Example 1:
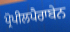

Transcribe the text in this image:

ਪ੍ਰੋਪੀਲਪੈਰਾਬੇਨ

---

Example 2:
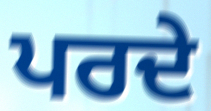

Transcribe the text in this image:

ਪਰਦੇ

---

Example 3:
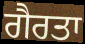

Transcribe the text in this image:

ਗੈਰਤਾ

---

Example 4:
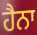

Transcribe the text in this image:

ਹੈਨਾ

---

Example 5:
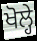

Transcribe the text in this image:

ਖੋਲ੍ਹੇ